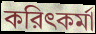
করিৎকর্মা